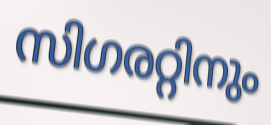
സിഗരറ്റിനും